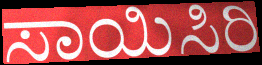
ಸಾಯಿಸಿರಿ